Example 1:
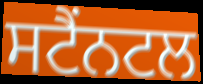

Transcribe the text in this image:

ਸਟੈਂਨਟਲ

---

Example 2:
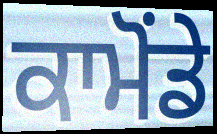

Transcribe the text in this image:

ਕਾਮੋਂਡੇ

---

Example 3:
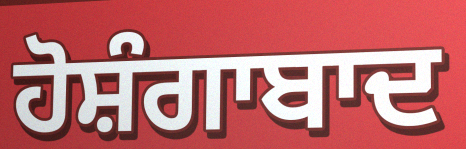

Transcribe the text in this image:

ਹੋਸ਼ੰਗਾਬਾਦ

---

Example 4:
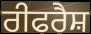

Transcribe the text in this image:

ਰੀਫਰੈਸ਼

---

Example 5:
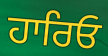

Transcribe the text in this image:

ਹਾਰਿਓ